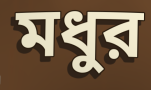
মধুর